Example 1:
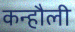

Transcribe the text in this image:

कन्हौली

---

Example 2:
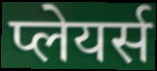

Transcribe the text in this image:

प्‍लेयर्स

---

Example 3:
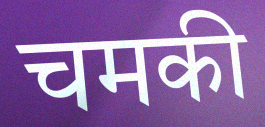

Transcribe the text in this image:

चमकी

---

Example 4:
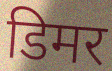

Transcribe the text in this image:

डिमर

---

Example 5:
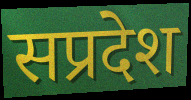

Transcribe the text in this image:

सप्रदेश